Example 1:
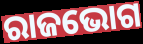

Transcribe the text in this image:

ରାଜଭୋଗ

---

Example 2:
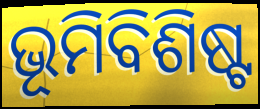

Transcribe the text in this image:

ଭୂମିବିଶିଷ୍ଟ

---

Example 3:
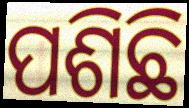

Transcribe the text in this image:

ପଶିଛି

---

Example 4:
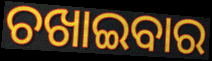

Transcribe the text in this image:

ଚଖାଇବାର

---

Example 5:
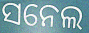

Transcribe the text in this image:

ସନେଲ